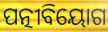
ପତ୍ନୀବିୟୋଗ